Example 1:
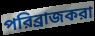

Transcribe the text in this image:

পরিব্রাজকরা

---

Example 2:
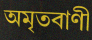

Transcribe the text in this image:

অমৃতবাণী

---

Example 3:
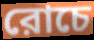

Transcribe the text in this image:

রোচে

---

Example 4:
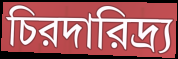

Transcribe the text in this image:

চিরদারিদ্র্য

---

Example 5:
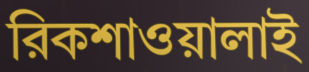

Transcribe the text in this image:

রিকশাওয়ালাই